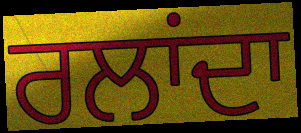
ਰਲਾਂਦਾ